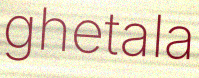
ghetala